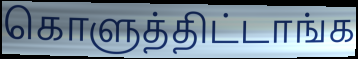
கொளுத்திட்டாங்க